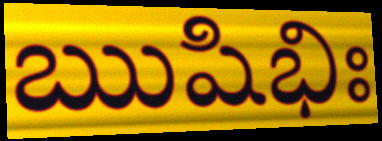
ఋషిభిః